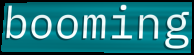
booming